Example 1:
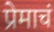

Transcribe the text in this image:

प्रेमाचं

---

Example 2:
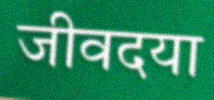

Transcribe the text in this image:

जीवदया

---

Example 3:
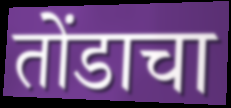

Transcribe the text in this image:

तोंडाचा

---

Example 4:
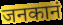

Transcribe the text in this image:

जनकानं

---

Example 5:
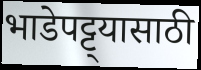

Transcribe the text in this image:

भाडेपट्ट्यासाठी